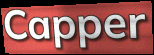
Capper